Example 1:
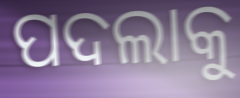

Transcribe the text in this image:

ପଦଲାକୁ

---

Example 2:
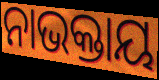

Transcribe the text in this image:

ନାଭକ୍ତାୟ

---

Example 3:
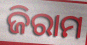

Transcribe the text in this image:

ଜିରାମ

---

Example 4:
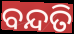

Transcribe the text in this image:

ବନ୍ଦତି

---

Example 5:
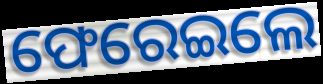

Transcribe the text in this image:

ଫେରେଇଲେ